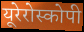
यूरेरोस्कोपी